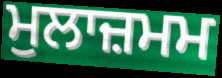
ਮੁਲਾਜ਼ਮਮ